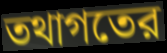
তথাগতের